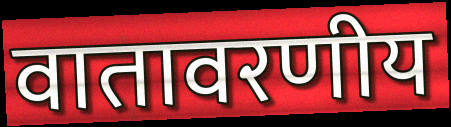
वातावरणीय